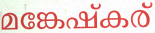
മങ്കേഷ്കര്